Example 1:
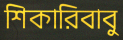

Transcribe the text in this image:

শিকারিবাবু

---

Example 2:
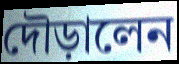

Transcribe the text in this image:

দৌড়ালেন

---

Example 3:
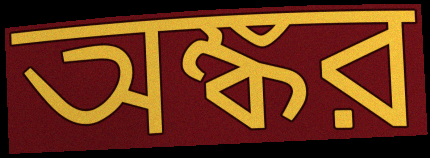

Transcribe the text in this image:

অঙ্কর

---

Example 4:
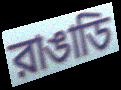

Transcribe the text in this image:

রাঙাডি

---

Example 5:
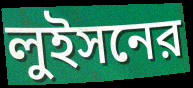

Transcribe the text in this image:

লুইসনের